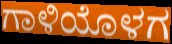
ಗಾಳಿಯೊಳಗ